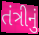
તંત્રીનું